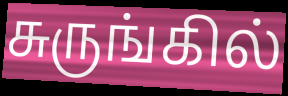
சுருங்கில்